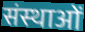
संस्थाओं